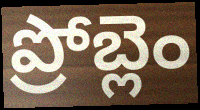
ప్రోబ్లెం